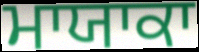
ਮਾਯਾਕਾ